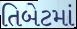
તિબેટમાં